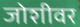
जोशीवर